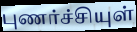
புணர்ச்சியுள்